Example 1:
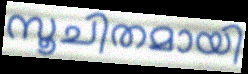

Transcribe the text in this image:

സൂചിതമായി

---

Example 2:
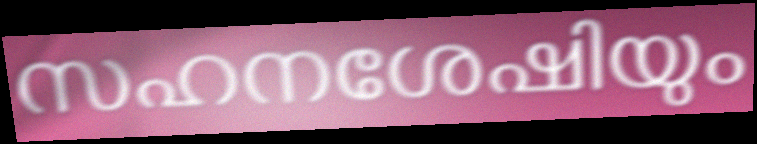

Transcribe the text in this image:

സഹനശേഷിയും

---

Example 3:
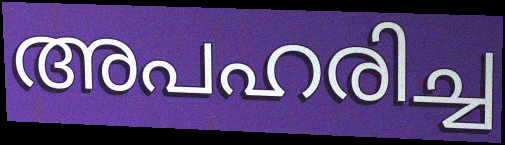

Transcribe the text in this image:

അപഹരിച്ച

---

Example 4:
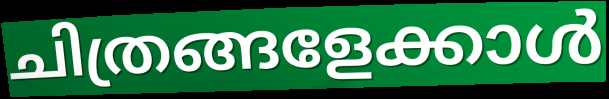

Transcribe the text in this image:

ചിത്രങ്ങളേക്കാൾ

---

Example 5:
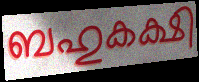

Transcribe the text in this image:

ബഹുകക്ഷി